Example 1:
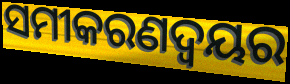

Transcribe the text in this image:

ସମୀକରଣଦ୍ଵୟର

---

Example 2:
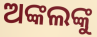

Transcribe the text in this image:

ଅଙ୍କଲଙ୍କୁ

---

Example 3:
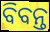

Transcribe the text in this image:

ବିବନ୍ତ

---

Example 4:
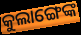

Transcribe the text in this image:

କୁଲାଙ୍ଗେଙ୍କ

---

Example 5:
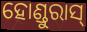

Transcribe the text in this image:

ହୋଣ୍ଡୁରାସ୍